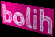
bolih